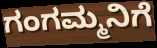
ಗಂಗಮ್ಮನಿಗೆ